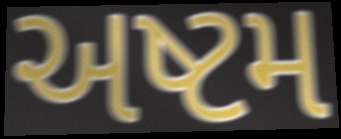
અષ્ટમ